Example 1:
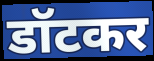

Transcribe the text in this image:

डॉटकर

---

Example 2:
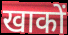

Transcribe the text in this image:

खाकों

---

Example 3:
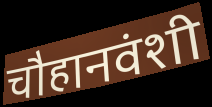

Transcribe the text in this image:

चौहानवंशी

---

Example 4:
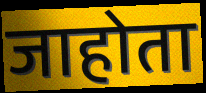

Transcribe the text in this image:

जाहोता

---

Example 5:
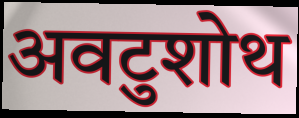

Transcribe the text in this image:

अवटुशोथ